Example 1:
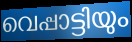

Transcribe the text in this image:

വെപ്പാട്ടിയും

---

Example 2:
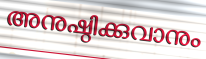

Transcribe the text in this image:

അനുഷ്ഠിക്കുവാനും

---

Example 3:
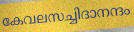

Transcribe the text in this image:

കേവലസച്ചിദാനന്ദം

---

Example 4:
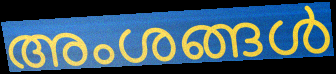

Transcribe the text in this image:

അംശങ്ങൾ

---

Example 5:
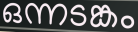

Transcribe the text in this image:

ഒന്നടങ്കം